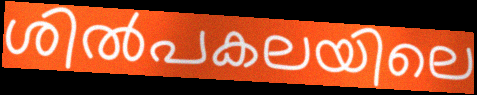
ശിൽപകലയിലെ